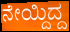
ನೇಯ್ದಿದ್ದ